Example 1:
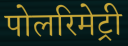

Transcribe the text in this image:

पोलरिमेट्री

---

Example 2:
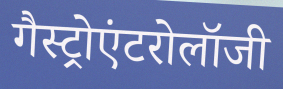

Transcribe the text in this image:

गैस्ट्रोएंटरोलॉजी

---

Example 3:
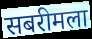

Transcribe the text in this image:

सबरीमला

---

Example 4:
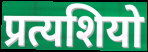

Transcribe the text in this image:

प्रत्यशियो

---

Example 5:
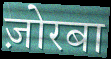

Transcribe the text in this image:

ज़ोरबा